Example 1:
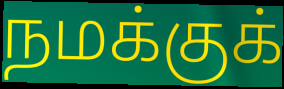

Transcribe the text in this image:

நமக்குக்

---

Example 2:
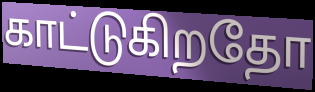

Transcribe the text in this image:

காட்டுகிறதோ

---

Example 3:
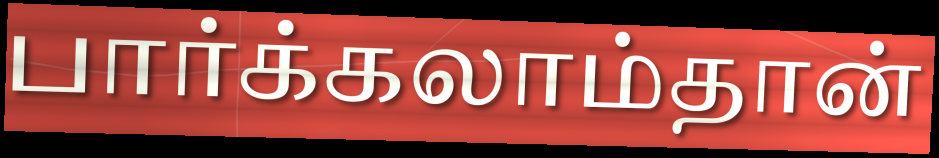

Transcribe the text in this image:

பார்க்கலாம்தான்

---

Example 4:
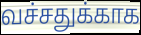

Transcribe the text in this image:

வச்சதுக்காக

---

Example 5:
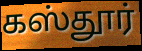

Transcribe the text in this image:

கஸ்தூர்